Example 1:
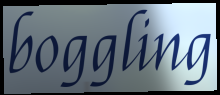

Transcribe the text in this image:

boggling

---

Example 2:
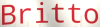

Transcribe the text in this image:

Britto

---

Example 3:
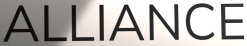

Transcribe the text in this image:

ALLIANCE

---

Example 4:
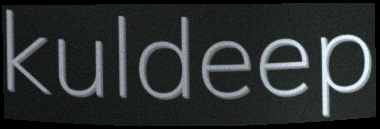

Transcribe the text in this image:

kuldeep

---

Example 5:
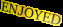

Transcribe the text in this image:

ENJOYED